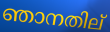
ഞാനതില്